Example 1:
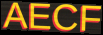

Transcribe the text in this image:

AECF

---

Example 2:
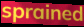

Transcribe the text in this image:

sprained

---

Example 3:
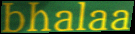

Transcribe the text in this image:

bhalaa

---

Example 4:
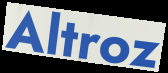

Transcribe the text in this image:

Altroz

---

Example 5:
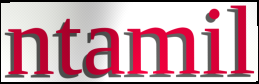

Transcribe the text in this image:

ntamil